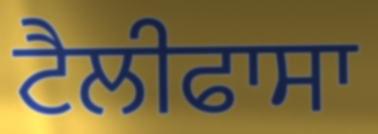
ਟੈਲੀਫਾਸਾ